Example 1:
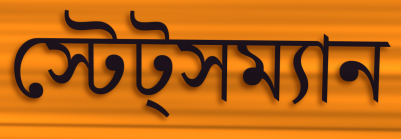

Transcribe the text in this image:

স্টেট্সম্যান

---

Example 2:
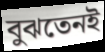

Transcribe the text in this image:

বুঝতেনই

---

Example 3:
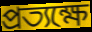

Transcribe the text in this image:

প্রত্যক্ষে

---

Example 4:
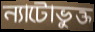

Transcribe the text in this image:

ন্যাটোভুক্ত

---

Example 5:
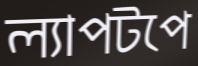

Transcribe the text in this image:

ল্যাপটপে